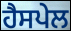
ਹੈਸਪੇਲ